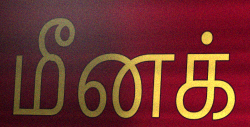
மீனக்